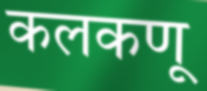
कलकणू